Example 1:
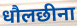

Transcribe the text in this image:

धौलछीना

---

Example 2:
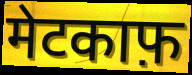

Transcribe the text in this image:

मेटकाफ़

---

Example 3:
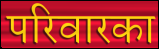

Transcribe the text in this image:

परिवारका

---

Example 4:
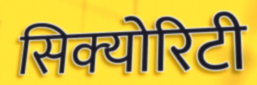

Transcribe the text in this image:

सिक्‍योरिटी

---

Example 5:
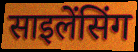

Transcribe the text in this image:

साइलेंसिंग